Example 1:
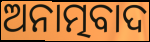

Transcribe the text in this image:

ଅନାତ୍ମବାଦ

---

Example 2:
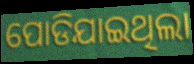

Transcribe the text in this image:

ପୋଡିଯାଇଥିଲା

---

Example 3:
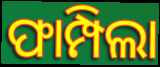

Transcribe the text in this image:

ଫାମ୍ପିଲା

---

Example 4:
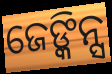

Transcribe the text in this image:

ଜେଙ୍କିନ୍ସ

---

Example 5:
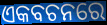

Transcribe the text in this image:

ଏକବଚନରେ